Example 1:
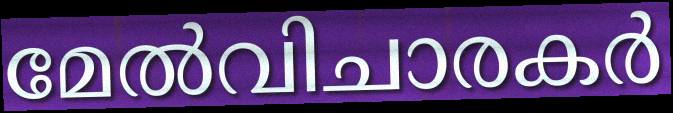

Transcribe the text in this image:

മേൽവിചാരകർ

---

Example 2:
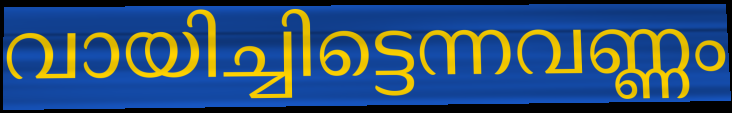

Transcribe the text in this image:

വായിച്ചിട്ടെന്നവണ്ണം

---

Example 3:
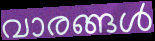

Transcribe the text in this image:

വാരങ്ങൾ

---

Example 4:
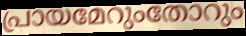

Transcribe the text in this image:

പ്രായമേറുംതോറും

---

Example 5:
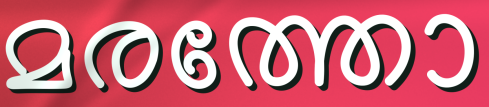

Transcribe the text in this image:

മരത്തോ